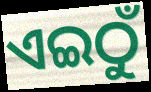
ଏଇଠୁଁ